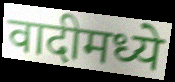
वादीमध्ये